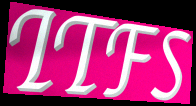
ITFS